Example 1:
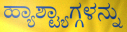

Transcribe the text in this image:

ಹ್ಯಾಶ್ಟ್ಯಾಗ್ಗಳನ್ನು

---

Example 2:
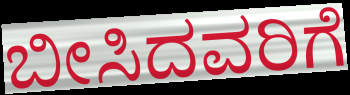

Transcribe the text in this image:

ಬೀಸಿದವರಿಗೆ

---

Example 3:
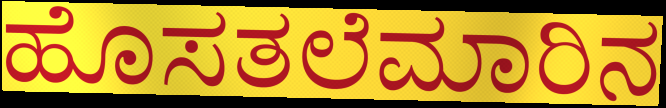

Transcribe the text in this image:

ಹೊಸತಲೆಮಾರಿನ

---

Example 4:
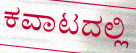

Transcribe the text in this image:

ಕವಾಟದಲ್ಲಿ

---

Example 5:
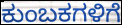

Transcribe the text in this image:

ಕುಂಬಕಗಳಿಗೆ